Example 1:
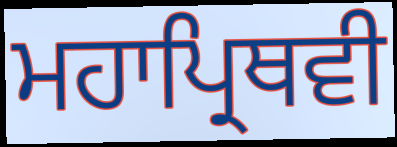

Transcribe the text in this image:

ਮਹਾਪ੍ਰਿਥਵੀ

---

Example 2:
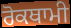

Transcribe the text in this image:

ਰੋਕਥਾਮੀ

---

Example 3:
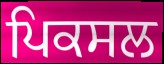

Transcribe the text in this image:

ਪਿਕਸਲ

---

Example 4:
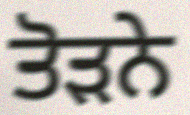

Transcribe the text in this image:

ਤੋੜਨੇ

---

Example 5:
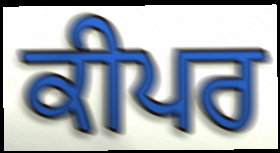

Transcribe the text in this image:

ਕੀਪਰ